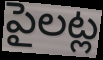
పైలట్ల